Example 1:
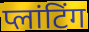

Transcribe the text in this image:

प्लांटिंग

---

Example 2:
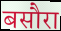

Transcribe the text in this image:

बसौरा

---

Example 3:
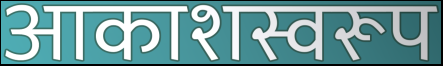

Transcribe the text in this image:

आकाशस्वरूप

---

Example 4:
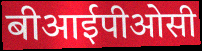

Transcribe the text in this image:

बीआईपीओसी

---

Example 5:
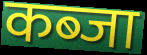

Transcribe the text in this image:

कब्‍जा